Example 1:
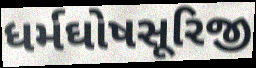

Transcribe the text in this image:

ધર્મઘોષસૂરિજી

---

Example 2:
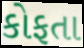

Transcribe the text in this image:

કોફતા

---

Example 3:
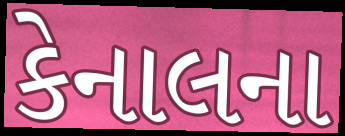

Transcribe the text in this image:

કેનાલના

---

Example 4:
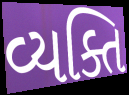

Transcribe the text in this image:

વ્યક્તિ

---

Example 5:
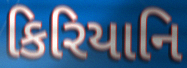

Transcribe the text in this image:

કિરિયાનિ